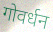
गोवर्धन